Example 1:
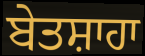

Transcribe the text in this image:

ਬੇਤਸ਼ਾਹਾ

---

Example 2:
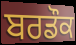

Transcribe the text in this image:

ਬਰਡੌਕ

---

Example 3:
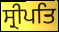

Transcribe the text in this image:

ਸ੍ਰੀਪਤਿ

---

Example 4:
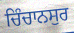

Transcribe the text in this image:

ਚਿੰਚਾਨਸੁਰ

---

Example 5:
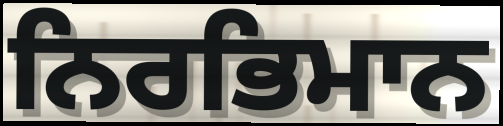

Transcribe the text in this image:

ਨਿਰਭਿਮਾਨ